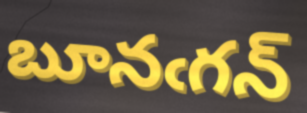
బూనఁగన్